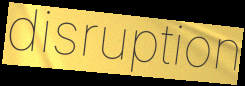
disruption